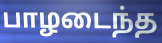
பாழடைந்த